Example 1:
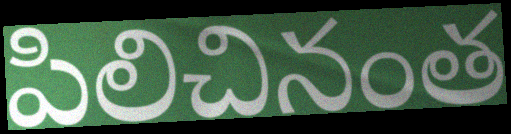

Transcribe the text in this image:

పిలిచినంత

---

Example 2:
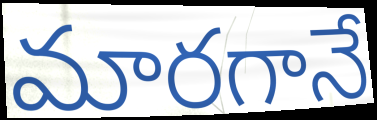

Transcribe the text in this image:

మారగానే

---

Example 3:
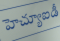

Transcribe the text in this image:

హెచ్యూఐడీ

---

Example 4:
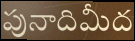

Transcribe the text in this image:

పునాదిమీద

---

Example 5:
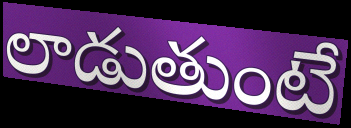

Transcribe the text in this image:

లాడుతుంటే